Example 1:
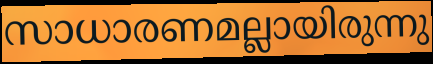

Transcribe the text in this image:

സാധാരണമല്ലായിരുന്നു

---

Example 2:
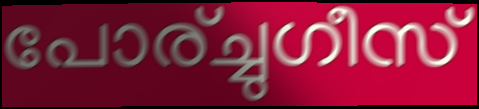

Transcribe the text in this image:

പോര്ച്ചുഗീസ്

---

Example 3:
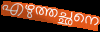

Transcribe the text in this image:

എഴുത്തച്ഛനെ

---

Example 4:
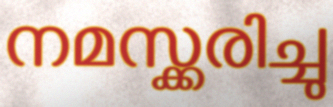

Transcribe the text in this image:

നമസ്ക്കരിച്ചു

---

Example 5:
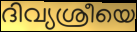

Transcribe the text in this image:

ദിവ്യശ്രീയെ